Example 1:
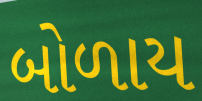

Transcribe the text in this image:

બોળાય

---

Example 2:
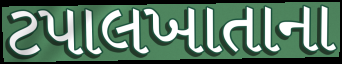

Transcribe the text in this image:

ટપાલખાતાના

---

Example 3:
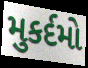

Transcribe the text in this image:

મુકર્દમો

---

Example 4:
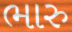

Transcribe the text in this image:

ભારુ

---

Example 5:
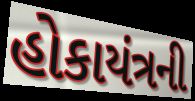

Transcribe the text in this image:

હોકાયંત્રની